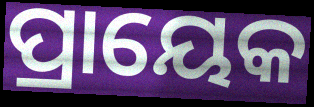
ପ୍ରାୟେକ